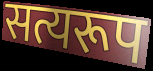
सत्यरूप